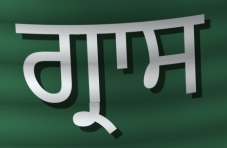
ਗ੍ਰਾਸ